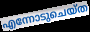
എന്നോടുചെയ്ത